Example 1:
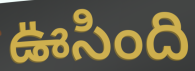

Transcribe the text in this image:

ఊసింది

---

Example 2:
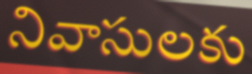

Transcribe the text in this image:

నివాసులకు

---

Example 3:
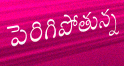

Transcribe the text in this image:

పెరిగిపోతున్న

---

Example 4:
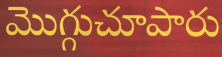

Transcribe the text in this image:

మొగ్గుచూపారు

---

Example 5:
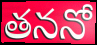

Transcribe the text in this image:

తననో